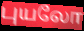
புயலோ